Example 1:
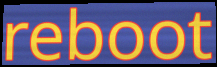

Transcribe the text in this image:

reboot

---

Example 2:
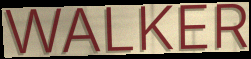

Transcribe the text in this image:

WALKER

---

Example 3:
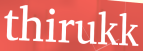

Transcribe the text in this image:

thirukk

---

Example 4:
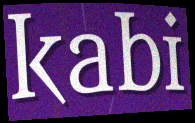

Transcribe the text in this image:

kabi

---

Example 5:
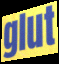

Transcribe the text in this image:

glut